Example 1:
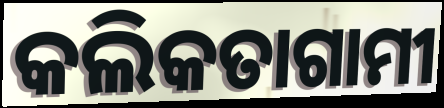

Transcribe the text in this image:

କଲିକତାଗାମୀ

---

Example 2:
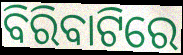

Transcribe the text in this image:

ବିରିବାଟିରେ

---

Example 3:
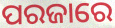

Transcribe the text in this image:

ପରଜାରେ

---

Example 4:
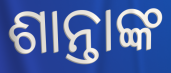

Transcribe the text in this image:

ଶାନ୍ତାଙ୍କ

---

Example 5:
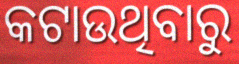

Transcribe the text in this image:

କଟାଉଥିବାରୁ